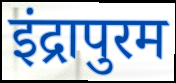
इंद्रापुरम